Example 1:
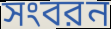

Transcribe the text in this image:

সংবরন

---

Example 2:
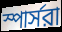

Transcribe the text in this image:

স্পার্সরা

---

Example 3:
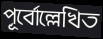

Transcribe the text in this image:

পূর্বোল্লেখিত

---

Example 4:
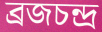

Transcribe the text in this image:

ব্রজচন্দ্র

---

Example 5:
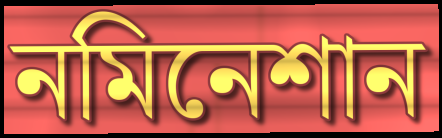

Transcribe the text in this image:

নমিনেশান